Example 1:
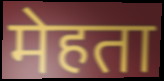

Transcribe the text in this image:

मेहता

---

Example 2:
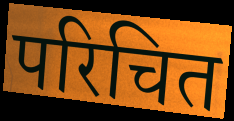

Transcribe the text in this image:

परिचित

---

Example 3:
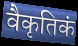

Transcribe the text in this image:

वैकृतिकं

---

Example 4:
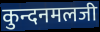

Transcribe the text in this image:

कुन्दनमलजी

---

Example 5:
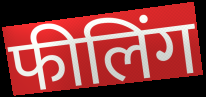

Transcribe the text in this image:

फीलिंग